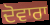
ਦੋਵਾਰਾ